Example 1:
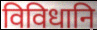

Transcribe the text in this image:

विविधानि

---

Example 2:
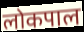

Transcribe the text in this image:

लोकपाल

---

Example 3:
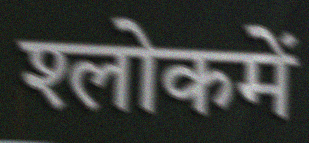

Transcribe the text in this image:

श्लोकमें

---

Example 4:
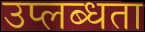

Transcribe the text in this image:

उप्लब्धता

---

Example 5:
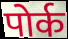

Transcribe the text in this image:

पोर्क